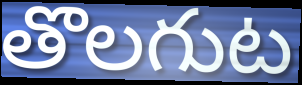
తొలగుట